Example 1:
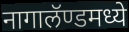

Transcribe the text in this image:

नागालॅण्डमध्ये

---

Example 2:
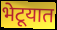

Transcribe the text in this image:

भेटूयात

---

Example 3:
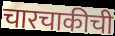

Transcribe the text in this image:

चारचाकीची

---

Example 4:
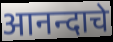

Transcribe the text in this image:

आनन्दाचे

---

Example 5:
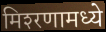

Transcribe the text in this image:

मिश्रणामध्ये